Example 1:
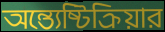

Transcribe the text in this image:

অন্ত্যেষ্টিক্রিয়ার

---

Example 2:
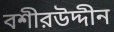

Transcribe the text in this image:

বশীরউদ্দীন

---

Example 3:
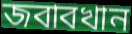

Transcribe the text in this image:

জবাবখান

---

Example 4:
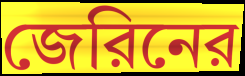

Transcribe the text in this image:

জেরিনের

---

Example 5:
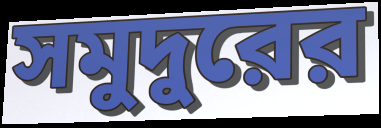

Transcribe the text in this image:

সমুদুরের